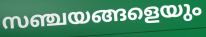
സഞ്ചയങ്ങളെയും